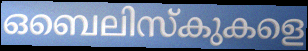
ഒബെലിസ്കുകളെ